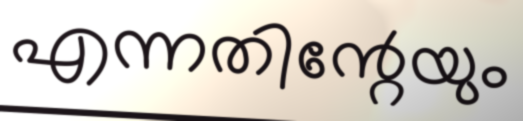
എന്നതിന്റേയും